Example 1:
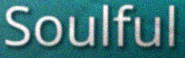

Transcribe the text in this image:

Soulful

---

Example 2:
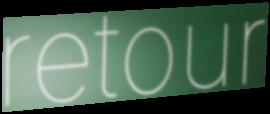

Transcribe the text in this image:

retour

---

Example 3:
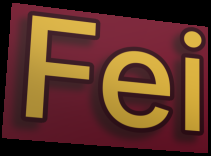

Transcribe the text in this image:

Fei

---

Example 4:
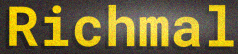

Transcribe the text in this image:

Richmal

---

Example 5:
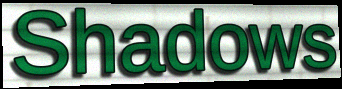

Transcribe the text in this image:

Shadows